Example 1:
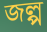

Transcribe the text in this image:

জল্প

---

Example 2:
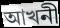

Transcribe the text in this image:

আখনী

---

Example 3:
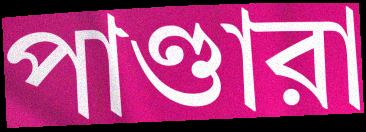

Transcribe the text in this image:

পাণ্ডারা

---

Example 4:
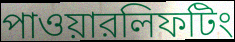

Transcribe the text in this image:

পাওয়ারলিফটিং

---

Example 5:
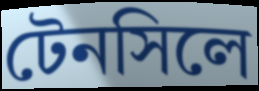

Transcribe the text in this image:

টেনসিলে